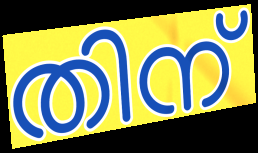
തിന്